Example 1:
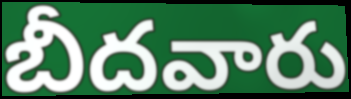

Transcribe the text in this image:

బీదవారు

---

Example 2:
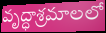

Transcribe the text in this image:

వృద్ధాశ్రమాలలో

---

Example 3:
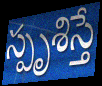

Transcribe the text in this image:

స్పృశిస్తే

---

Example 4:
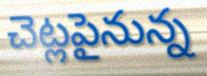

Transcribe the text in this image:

చెట్లపైనున్న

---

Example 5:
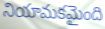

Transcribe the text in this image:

నియామకమైంది